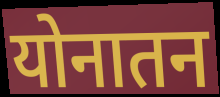
योनातन